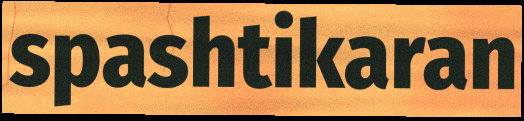
spashtikaran